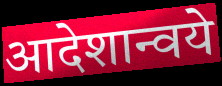
आदेशान्वये